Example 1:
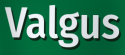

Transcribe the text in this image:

Valgus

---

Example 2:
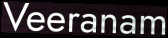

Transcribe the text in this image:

Veeranam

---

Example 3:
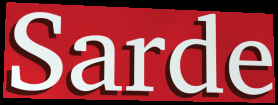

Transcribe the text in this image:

Sarde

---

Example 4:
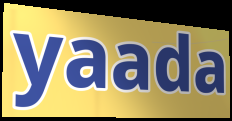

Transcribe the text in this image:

yaada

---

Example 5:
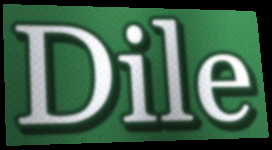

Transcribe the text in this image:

Dile